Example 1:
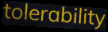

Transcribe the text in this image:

tolerability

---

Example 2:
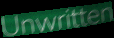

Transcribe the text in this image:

Unwritten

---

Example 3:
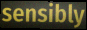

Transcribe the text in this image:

sensibly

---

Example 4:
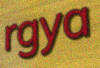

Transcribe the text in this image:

rgya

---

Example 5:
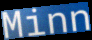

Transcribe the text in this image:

Minn